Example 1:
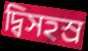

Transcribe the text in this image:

দ্বিসহস্র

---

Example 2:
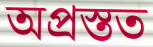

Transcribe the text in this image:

অপ্রস্তত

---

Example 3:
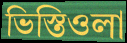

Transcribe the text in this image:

ভিস্তিওলা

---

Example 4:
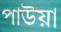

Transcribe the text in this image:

পাউয়া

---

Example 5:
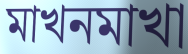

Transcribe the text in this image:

মাখনমাখা